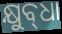
କ୍ଷୁବ୍‌ଧା